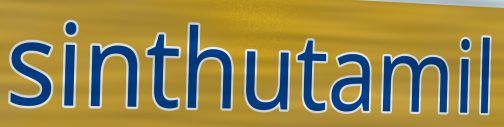
sinthutamil